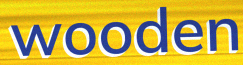
wooden